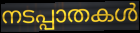
നടപ്പാതകൾ